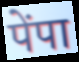
पेंपा